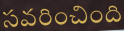
సవరించింది